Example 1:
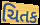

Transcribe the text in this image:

ચિતક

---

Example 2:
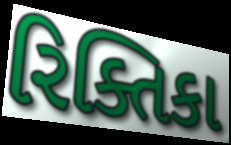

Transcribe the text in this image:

રિક્તિકા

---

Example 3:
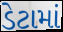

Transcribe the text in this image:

ડેટામાં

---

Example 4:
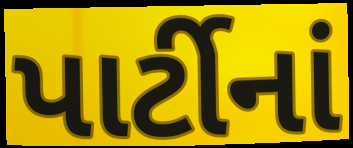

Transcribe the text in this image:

પાર્ટીનાં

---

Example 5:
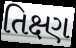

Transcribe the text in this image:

તિક્ષ્ણ